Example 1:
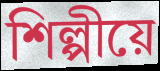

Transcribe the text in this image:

শিল্পীয়ে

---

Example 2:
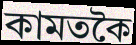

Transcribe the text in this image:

কামতকৈ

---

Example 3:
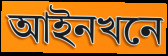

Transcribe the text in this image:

আইনখনে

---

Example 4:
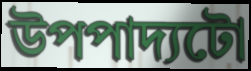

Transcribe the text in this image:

উপপাদ্যটো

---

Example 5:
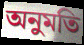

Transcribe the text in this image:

অনুমতি